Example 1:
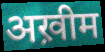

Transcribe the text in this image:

अख़ीम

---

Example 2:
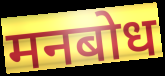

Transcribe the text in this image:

मनबोध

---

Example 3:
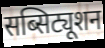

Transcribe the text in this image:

सब्सिट्यूशन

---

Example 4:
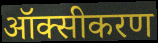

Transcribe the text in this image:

ऑक्सीकरण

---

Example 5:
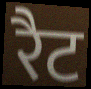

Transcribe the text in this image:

रैट